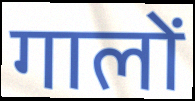
गालों